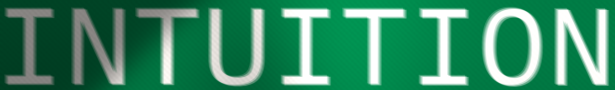
INTUITION